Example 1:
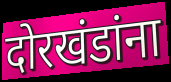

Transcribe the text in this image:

दोरखंडांना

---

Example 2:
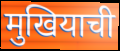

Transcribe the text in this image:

मुखियाची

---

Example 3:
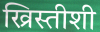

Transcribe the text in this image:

ख्रिस्तीशी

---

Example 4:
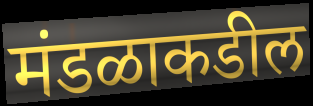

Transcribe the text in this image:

मंडळाकडील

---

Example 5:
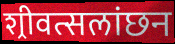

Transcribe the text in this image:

श्रीवत्सलांछन